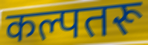
कल्पतरू